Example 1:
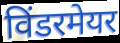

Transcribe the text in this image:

विंडरमेयर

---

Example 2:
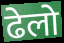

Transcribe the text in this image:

ढेलो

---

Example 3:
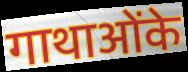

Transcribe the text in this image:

गाथाओंके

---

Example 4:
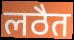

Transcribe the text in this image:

लठैत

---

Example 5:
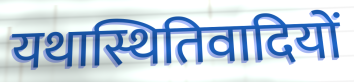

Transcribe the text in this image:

यथास्थितिवादियों